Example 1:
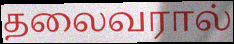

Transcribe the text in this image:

தலைவரால்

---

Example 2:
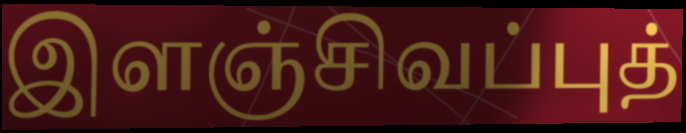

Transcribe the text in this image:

இளஞ்சிவப்புத்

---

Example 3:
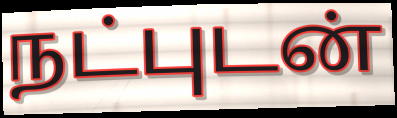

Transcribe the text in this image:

நட்புடன்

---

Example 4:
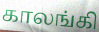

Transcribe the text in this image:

காலங்கி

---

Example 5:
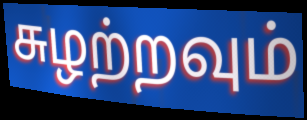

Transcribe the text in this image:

சுழற்றவும்